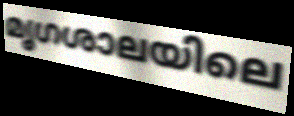
മൃഗശാലയിലെ